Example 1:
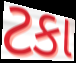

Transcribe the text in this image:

ટકા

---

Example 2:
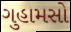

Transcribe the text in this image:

ગુહામસો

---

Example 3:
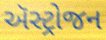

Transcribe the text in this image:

ઍસ્ટ્રોજન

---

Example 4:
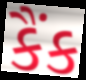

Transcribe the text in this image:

કૈંક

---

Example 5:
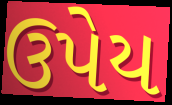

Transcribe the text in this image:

ઉપેય